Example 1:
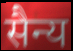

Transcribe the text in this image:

सैन्य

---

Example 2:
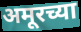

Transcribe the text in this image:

अमूरच्या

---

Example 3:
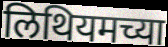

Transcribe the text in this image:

लिथियमच्या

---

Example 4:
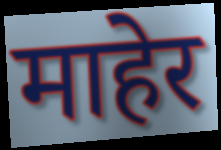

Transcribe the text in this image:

माहेर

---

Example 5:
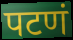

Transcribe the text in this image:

पटणं